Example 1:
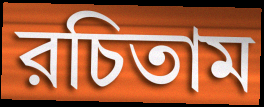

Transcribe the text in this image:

রচিতাম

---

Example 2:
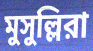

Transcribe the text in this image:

মুসুল্লিরা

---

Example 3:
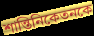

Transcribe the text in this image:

শান্তিনিকেতনকে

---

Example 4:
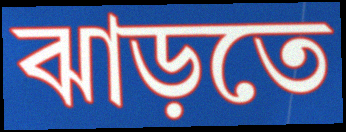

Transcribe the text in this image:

ঝাড়তে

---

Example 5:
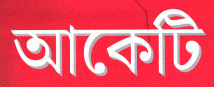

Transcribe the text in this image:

আকেটি